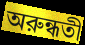
অরুন্ধতী